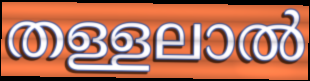
തള്ളലാൽ